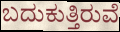
ಬದುಕುತ್ತಿರುವೆ